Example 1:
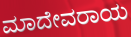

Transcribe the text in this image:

ಮಾದೇವರಾಯ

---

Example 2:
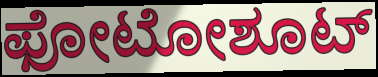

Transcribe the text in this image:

ಫೋಟೋಶೂಟ್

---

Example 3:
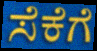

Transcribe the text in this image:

ಸೆಕೆಗೆ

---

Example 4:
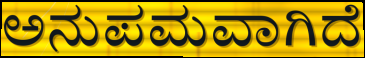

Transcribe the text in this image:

ಅನುಪಮವಾಗಿದೆ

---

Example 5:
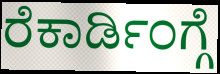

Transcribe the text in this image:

ರೆಕಾರ್ಡಿಂಗ್ಗೆ